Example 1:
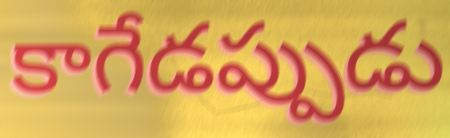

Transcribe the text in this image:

కాగేడప్పుడు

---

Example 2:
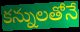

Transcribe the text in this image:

కన్నులతోనే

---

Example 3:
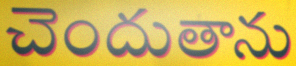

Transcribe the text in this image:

చెందుతాను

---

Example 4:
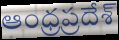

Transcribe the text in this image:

ఆంధ్రప్రదేశ్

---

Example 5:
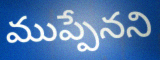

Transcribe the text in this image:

ముప్పేనని